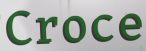
Croce